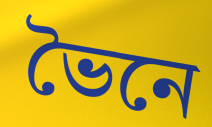
ভৈনে